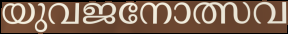
യുവജനോത്സവ